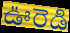
ఊరెడి